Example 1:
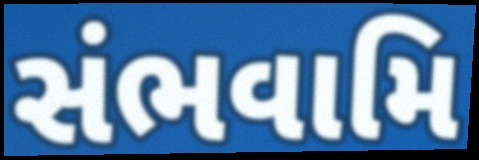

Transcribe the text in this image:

સંભવામિ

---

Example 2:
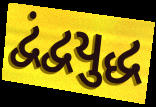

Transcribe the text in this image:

દ્વંદ્વયુદ્ધ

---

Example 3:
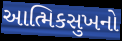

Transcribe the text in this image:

આત્મિકસુખનો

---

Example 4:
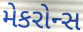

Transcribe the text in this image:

મેકરોન્સ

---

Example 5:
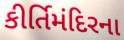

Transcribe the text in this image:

કીર્તિમંદિરના